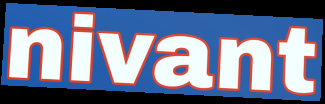
nivant